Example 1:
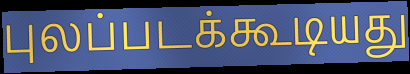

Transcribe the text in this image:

புலப்படக்கூடியது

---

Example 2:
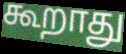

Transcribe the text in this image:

கூறாது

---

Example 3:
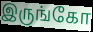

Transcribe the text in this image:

இருங்கோ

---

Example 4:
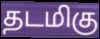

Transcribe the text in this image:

தடமிகு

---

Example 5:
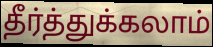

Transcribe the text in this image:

தீர்த்துக்கலாம்